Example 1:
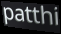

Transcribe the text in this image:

patthi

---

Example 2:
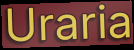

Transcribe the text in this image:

Uraria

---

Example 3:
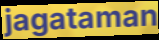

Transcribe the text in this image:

jagataman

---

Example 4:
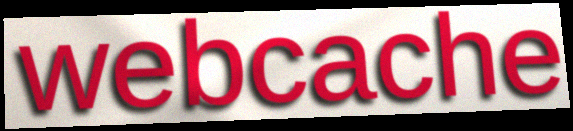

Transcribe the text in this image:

webcache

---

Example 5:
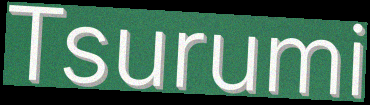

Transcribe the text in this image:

Tsurumi